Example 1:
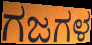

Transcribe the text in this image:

ಗಜಗಳ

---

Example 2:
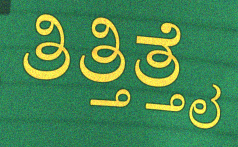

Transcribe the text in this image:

ತಿತ್ತಿತ್ತೈ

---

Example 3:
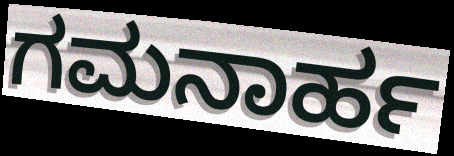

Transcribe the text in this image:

ಗಮನಾರ್ಹ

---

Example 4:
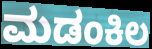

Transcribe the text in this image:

ಮಡಂಕಿಲ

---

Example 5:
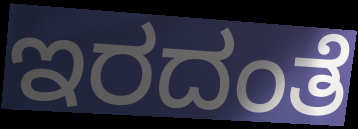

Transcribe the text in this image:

ಇರದಂತೆ